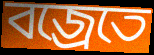
বজ্রেতে